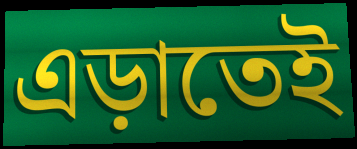
এড়াতেই